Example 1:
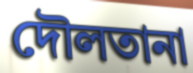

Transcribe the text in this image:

দৌলতানা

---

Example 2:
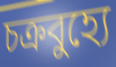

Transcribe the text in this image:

চক্রবুহ্যে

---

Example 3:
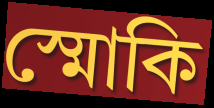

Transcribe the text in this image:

স্মোকি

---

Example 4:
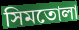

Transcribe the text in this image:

সিমতোলা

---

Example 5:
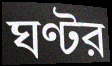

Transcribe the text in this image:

ঘণ্টর